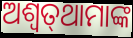
ଅଶ୍ୱତ୍‌ଥାମାଙ୍କ